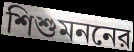
শিশুমননের